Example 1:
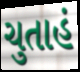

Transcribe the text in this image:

ચુતાહં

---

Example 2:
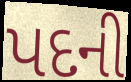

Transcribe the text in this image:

પદની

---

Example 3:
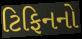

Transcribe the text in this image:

ટિફિનનો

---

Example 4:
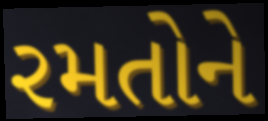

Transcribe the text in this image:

રમતોને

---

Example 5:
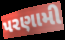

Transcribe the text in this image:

પરણામી